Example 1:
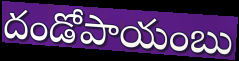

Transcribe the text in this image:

దండోపాయంబు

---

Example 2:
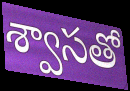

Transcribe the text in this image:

శ్వాసతో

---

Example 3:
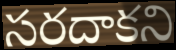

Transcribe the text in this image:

సరదాకని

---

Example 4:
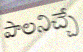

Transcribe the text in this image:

పాలనిచ్చే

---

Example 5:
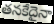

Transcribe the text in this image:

తనకేదైనా